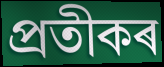
প্ৰতীকৰ